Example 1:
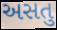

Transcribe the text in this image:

અસતુ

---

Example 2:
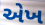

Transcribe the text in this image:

એખ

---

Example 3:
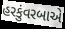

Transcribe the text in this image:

હરકુંવરબાએ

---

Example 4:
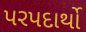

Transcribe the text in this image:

પરપદાર્થો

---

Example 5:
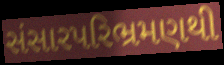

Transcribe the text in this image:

સંસારપરિભ્રમણથી